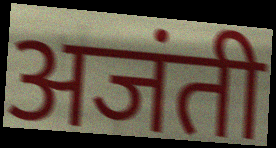
अजंती